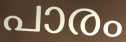
പാരം